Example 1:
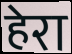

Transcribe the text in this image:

हेरा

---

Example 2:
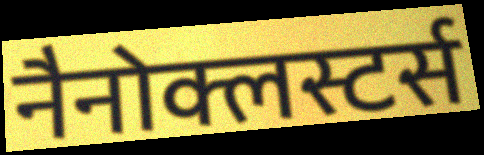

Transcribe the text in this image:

नैनोक्लस्टर्स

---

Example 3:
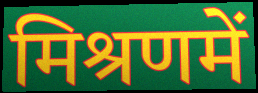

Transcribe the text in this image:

मिश्रणमें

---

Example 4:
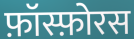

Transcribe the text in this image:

फ़ॉस्फ़ोरस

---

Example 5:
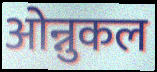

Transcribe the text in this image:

ओन्नुकल